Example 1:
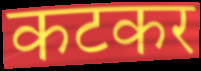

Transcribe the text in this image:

कटकर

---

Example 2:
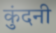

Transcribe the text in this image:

कुंदनी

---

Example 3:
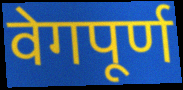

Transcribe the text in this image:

वेगपूर्ण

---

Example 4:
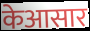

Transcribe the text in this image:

केआसार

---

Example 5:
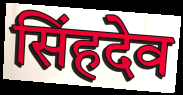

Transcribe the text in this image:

सिंहदेव